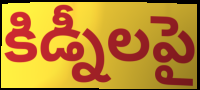
కిడ్నీలపై